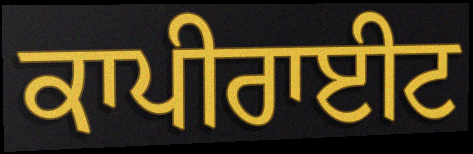
ਕਾਪੀਰਾਈਟ